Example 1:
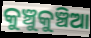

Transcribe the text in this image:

କୁଞ୍ଚୁକୁଞ୍ଚିଆ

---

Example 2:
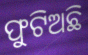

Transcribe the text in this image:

ଫୁଟିଅଛି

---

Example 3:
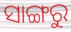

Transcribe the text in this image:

ସାଙ୍ଗରୁ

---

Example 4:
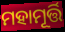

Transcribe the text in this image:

ମହାମୂର୍ତ୍ତି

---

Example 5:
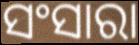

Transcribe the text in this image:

ସଂସାରା